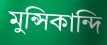
মুন্সিকান্দি